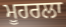
ਮੂਹਰਲਾ